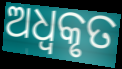
ଅଧ୍ବକୃତ